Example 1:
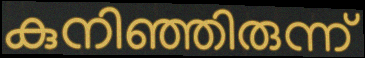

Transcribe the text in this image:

കുനിഞ്ഞിരുന്ന്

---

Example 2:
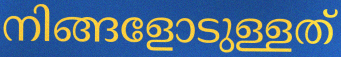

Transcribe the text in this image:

നിങ്ങളോടുള്ളത്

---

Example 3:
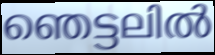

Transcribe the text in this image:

ഞെട്ടലിൽ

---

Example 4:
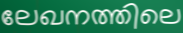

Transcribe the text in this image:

ലേഖനത്തിലെ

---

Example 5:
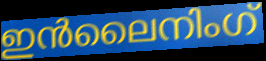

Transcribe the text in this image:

ഇൻലൈനിംഗ്